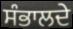
ਸੰਭਾਲਦੇ